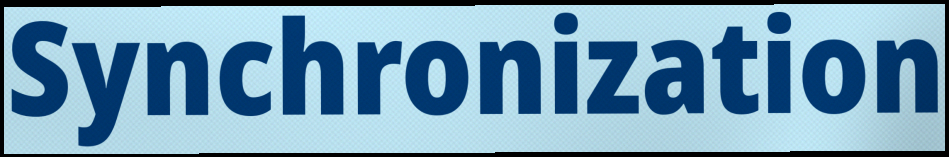
Synchronization